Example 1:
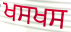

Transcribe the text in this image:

ਖਸਖਸ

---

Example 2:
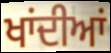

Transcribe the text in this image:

ਖਾਂਦੀਆਂ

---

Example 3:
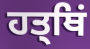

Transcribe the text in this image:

ਹਤ੍ਥਿਂ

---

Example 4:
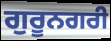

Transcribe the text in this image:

ਗੁਰੂਨਗਰੀ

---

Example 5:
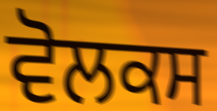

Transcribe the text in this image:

ਵੋਲਕਸ